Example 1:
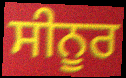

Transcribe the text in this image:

ਸੀਨੂਰ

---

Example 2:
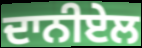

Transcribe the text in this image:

ਦਾਨੀਏਲ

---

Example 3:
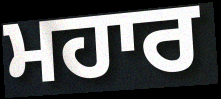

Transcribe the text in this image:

ਮਹਾਰ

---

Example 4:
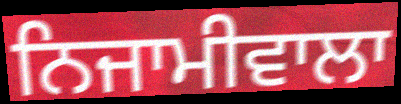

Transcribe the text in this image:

ਨਿਜਾਮੀਵਾਲਾ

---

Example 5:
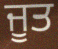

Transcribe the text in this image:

ਜੂਤ